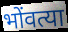
भोंवत्या